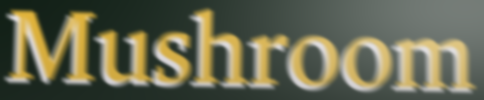
Mushroom